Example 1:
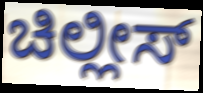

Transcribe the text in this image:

ಚಿಲ್ಲೀಸ್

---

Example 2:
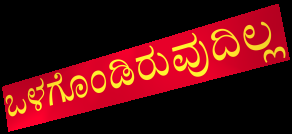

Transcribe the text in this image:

ಒಳಗೊಂಡಿರುವುದಿಲ್ಲ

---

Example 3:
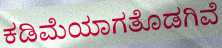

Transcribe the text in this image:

ಕಡಿಮೆಯಾಗತೊಡಗಿವೆ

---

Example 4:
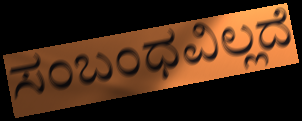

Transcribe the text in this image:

ಸಂಬಂಧವಿಲ್ಲದೆ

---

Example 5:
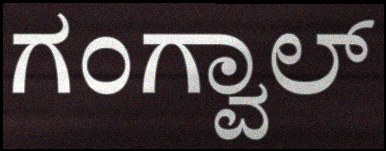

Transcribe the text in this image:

ಗಂಗ್ವಾಲ್